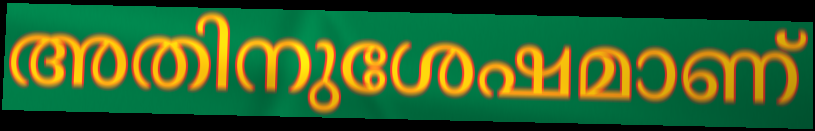
അതിനുശേഷമാണ്